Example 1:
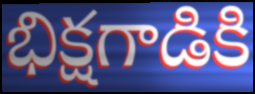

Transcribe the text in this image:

భిక్షగాడికి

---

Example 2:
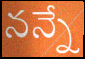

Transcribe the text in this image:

నన్నే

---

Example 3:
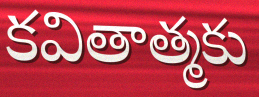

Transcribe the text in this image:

కవితాత్మకు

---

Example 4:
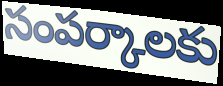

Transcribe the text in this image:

సంపర్కాలకు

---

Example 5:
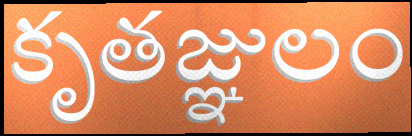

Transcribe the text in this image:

కృతజ్ఞులం